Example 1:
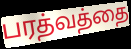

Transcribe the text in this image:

பரத்வத்தை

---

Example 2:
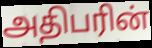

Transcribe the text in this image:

அதிபரின்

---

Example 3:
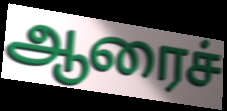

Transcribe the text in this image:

ஆரைச்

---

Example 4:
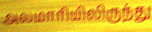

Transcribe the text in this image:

அலமாரியிலிருந்து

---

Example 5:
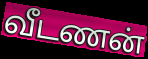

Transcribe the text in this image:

வீடணன்